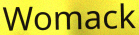
Womack